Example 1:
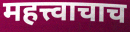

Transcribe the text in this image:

महत्त्वाचाच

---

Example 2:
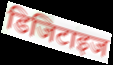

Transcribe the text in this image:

डिजिटाइज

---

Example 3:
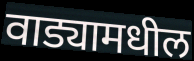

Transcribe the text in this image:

वाड्यामधील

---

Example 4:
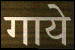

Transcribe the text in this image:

गाये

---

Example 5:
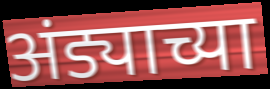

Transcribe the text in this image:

अंड्याच्या